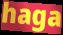
haga